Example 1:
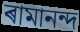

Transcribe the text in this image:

ৰামানন্দ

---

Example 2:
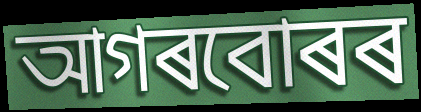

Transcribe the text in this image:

আগৰবোৰৰ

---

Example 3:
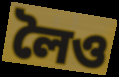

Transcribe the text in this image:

লৈও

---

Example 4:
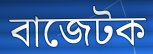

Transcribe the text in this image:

বাজেটক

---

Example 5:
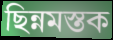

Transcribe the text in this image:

ছিন্নমস্তক